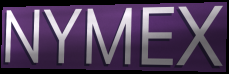
NYMEX